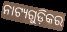
ନାଟ୍ୟଗୁଡ଼ିକର